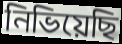
নিভিয়েছি